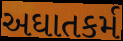
અઘાતકર્મ